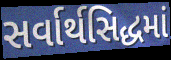
સર્વાર્થસિદ્ધમાં